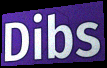
Dibs